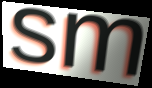
sm